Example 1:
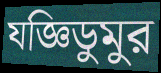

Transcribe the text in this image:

যজ্ঞিডুমুর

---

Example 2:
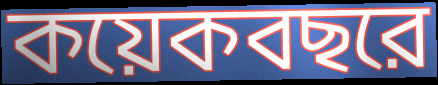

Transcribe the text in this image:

কয়েকবছরে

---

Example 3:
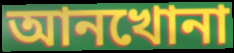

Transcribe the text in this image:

আনখোনা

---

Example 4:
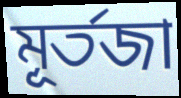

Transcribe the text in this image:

মূর্তজা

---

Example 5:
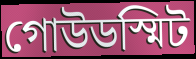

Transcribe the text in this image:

গোউডস্মিট